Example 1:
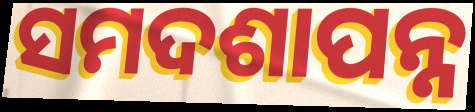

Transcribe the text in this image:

ସମଦଶାପନ୍ନ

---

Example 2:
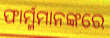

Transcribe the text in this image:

ଫାର୍ମ୍ମମାନଙ୍କରେ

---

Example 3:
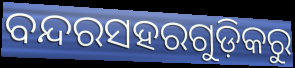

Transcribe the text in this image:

ବନ୍ଦରସହରଗୁଡ଼ିକରୁ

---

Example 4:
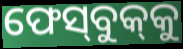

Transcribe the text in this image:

ଫେସ୍‌ବୁକ୍‌କୁ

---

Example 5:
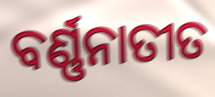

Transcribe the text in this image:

ବର୍ଣ୍ଣନାତୀତ